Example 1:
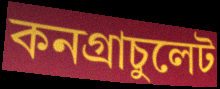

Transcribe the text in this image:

কনগ্রাচুলেট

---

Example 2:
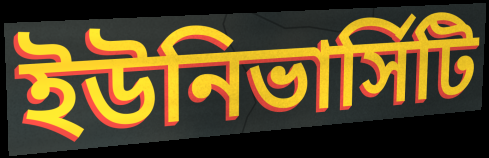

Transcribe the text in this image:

ইউনিভার্সিটি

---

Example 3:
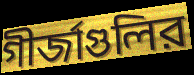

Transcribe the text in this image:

গীর্জাগুলির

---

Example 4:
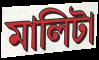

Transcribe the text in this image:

মালিটা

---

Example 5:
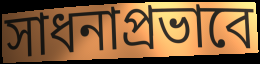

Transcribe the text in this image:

সাধনাপ্রভাবে